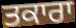
ਤਕਾਰਾ